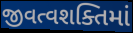
જીવત્વશક્તિમાં